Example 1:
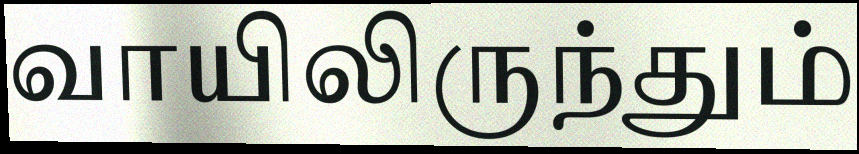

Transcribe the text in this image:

வாயிலிருந்தும்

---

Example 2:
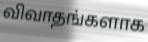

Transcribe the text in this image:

விவாதங்களாக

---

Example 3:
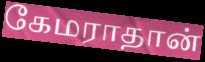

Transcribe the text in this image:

கேமராதான்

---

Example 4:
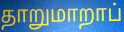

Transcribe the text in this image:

தாறுமாறாப்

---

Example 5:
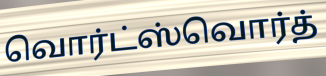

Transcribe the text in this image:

வொர்ட்ஸ்வொர்த்